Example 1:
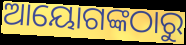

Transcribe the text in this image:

ଆୟୋଗଙ୍କଠାରୁ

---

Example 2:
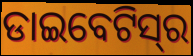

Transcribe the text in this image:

ଡାଇବେଟିସ୍‌ର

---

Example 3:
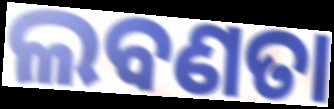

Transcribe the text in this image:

ଲବଣତା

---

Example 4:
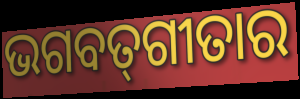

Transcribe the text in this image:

ଭଗବତ୍‍ଗୀତାର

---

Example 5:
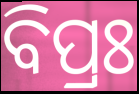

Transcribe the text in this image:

ବିପ୍ରଃ